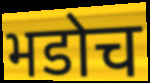
भडोच